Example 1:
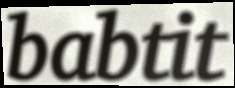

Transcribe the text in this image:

babtit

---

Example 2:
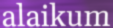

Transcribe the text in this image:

alaikum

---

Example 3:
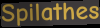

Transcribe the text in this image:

Spilathes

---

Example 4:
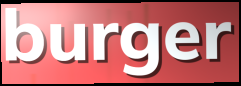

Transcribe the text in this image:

burger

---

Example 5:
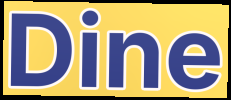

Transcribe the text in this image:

Dine